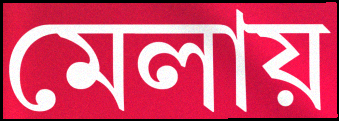
মেলায়